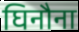
घिनौना